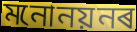
মনোনয়নৰ